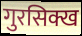
गुरसिक्ख